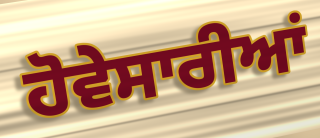
ਹੋਵੇਸਾਰੀਆਂ